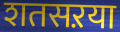
शतसऱया